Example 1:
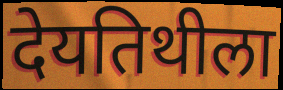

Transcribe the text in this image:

देयतिथीला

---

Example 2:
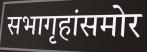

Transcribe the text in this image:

सभागृहांसमोर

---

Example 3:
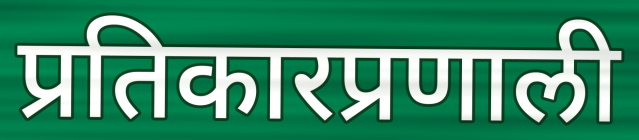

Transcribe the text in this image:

प्रतिकारप्रणाली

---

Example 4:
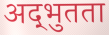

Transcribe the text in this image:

अद्‌भुतता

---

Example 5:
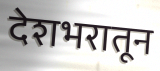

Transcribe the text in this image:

देशभरातून